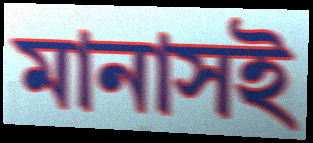
মানাসই